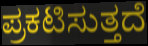
ಪ್ರಕಟಿಸುತ್ತದೆ